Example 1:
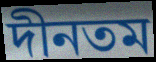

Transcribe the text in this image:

দীনতম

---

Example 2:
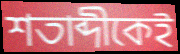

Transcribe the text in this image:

শতাব্দীকেই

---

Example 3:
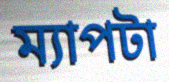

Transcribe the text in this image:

ম্যাপটা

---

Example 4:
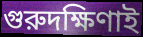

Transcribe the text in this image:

গুরুদক্ষিণাই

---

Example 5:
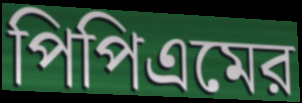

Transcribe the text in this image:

পিপিএমের